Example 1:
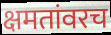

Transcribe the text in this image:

क्षमतांवरच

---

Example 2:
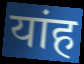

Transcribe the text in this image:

यांह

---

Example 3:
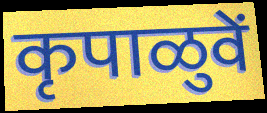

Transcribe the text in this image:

कृपाळुवें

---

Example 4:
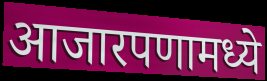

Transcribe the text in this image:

आजारपणामध्ये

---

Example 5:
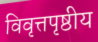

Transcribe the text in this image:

विवृत्तपृष्ठीय